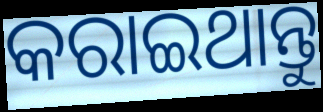
କରାଇଥାନ୍ତୁ